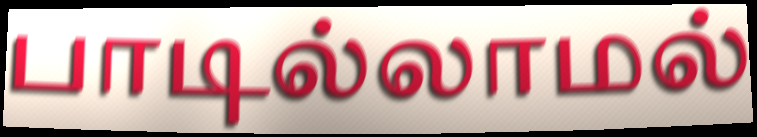
பாடில்லாமல்